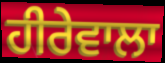
ਹੀਰੇਵਾਲਾ